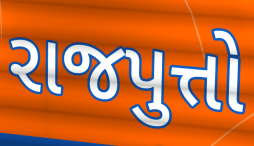
રાજપુત્તો